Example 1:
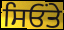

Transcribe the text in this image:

ਸਿਓਂਤੇ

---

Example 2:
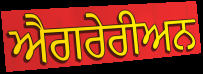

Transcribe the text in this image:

ਐਗਰੇਰੀਅਨ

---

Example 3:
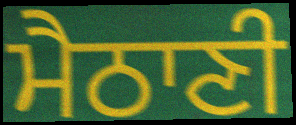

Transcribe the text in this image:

ਮੈਠਾਣੀ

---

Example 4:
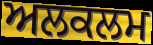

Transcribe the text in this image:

ਅਲਕਲਮ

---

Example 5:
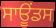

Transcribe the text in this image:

ਸਾਊਂਡਸ